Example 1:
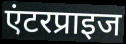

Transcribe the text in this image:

एंटरप्राइज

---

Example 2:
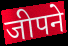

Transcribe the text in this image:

जीपने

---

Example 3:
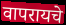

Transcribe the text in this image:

वापरायचे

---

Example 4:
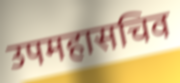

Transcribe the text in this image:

उपमहासचिव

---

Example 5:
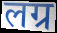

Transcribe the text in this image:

लग्र